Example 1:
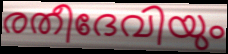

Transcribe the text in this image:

രതീദേവിയും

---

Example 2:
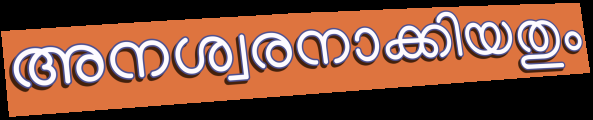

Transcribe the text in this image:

അനശ്വരനാക്കിയതും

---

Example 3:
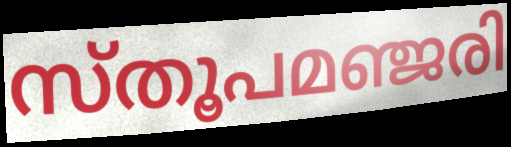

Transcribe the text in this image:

സ്തൂപമഞ്ജരി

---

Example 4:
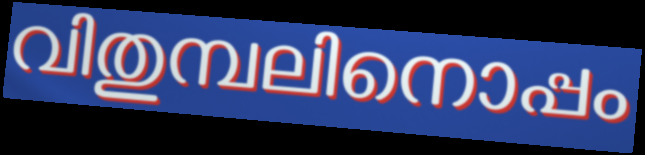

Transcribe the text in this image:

വിതുമ്പലിനൊപ്പം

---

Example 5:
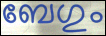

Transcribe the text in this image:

ബേഗും